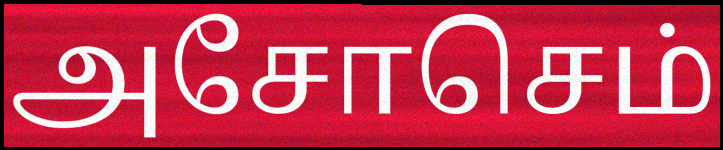
அசோசெம்